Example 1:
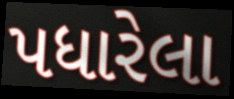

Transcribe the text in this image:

પધારેલા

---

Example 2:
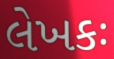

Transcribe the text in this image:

લેખકઃ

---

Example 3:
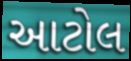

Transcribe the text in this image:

આટોલ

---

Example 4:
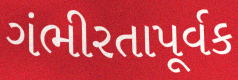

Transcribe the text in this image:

ગંભીરતાપૂર્વક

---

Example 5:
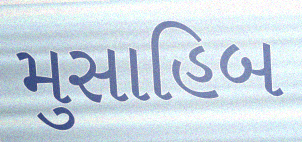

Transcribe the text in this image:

મુસાહિબ